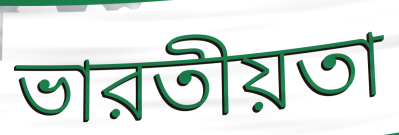
ভারতীয়তা